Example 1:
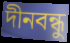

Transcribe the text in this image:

দীনবন্ধু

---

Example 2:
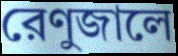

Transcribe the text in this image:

রেণুজালে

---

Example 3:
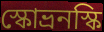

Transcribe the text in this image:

স্কোভ্রনস্কি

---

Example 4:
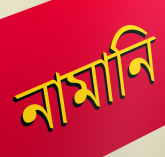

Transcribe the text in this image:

নামানি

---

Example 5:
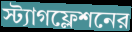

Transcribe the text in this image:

স্ট্যাগফ্লেশনের